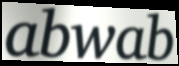
abwab